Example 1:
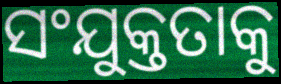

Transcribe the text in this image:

ସଂଯୁକ୍ତତାକୁ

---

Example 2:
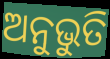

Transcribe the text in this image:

ଅନୁଭୁତି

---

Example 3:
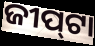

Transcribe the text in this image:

ଜୀପ୍‍ଟା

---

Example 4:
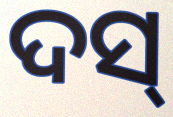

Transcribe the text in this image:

ଦସ୍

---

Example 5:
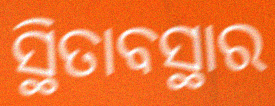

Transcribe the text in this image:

ସ୍ଥିତାବସ୍ଥାର